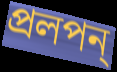
প্রলপন্